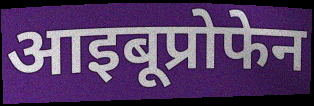
आइबूप्रोफेन